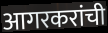
आगरकरांची